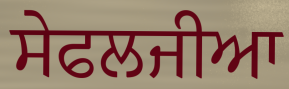
ਸੇਫਲਜੀਆ